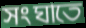
সংঘাতে